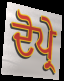
ਦੋਪ੍ਰੇ